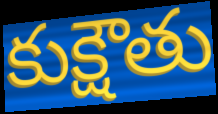
కుక్షౌతు